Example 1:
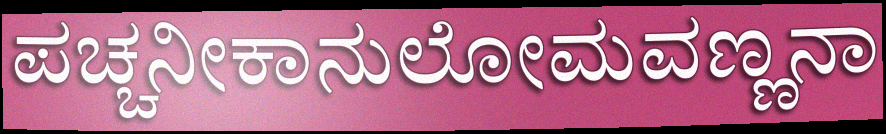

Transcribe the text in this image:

ಪಚ್ಚನೀಕಾನುಲೋಮವಣ್ಣನಾ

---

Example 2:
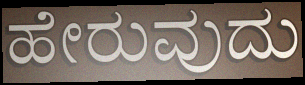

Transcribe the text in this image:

ಹೇರುವುದು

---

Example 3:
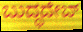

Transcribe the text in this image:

ಬುದ್ಧದೇಬ್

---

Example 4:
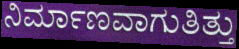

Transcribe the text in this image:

ನಿರ್ಮಾಣವಾಗುತಿತ್ತು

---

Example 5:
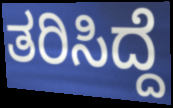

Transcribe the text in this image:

ತರಿಸಿದ್ದೆ